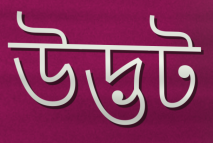
উদ্ভট